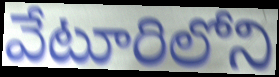
వేటూరిలోని